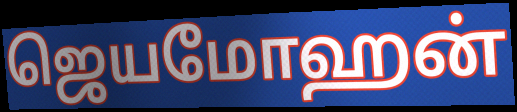
ஜெயமோஹன்